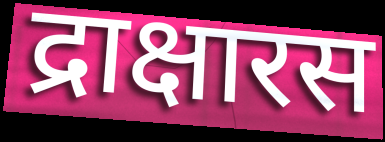
द्राक्षारस